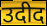
उदीद